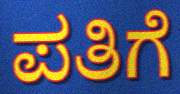
ಪತಿಗೆ